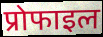
प्रोफाइल